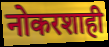
नोकरशाही